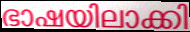
ഭാഷയിലാക്കി